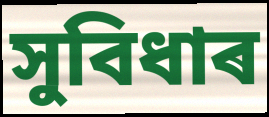
সুবিধাৰ